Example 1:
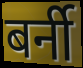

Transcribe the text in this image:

बर्नी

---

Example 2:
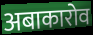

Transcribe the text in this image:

अबाकारोव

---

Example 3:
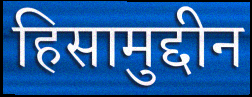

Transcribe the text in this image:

हिसामुद्दीन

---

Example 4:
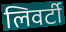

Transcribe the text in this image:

लिवर्टी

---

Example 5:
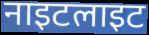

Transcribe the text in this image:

नाइटलाइट